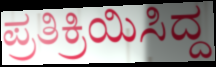
ಪ್ರತಿಕ್ರಿಯಿಸಿದ್ದ